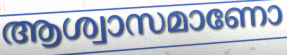
ആശ്വാസമാണോ